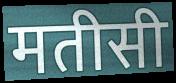
मतीसी